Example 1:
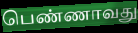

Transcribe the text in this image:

பெண்ணாவது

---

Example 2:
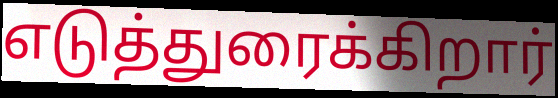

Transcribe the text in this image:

எடுத்துரைக்கிறார்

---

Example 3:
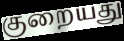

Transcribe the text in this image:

குறையது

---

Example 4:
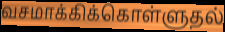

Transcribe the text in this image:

வசமாக்கிக்கொள்ளுதல்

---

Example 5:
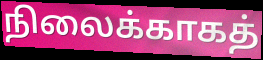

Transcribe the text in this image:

நிலைக்காகத்